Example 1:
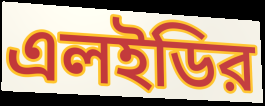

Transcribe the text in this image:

এলইডির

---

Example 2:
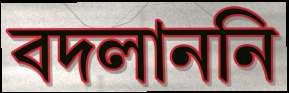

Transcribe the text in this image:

বদলাননি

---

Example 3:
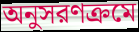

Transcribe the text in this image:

অনুসরণক্রমে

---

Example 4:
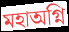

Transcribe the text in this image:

মহাঅগ্নি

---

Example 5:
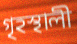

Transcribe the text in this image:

গৃহস্থালী